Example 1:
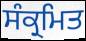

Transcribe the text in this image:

ਸੰਕ੍ਰਮਿਤ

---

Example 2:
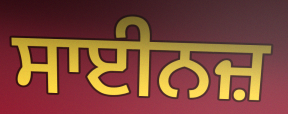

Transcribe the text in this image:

ਸਾਈਨਜ਼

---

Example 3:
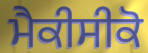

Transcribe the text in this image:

ਮੈਕੀਸੀਕੋ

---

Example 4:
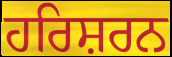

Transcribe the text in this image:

ਹਰਿਸ਼ਰਨ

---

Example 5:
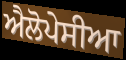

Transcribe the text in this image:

ਐਲੋਪੇਸੀਆ